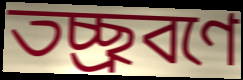
তচ্ছ্রবণে